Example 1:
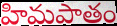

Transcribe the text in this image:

హిమపాతం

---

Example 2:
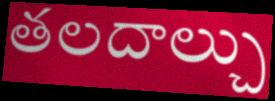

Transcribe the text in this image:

తలదాల్చు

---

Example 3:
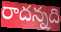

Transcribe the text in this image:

రాదన్నది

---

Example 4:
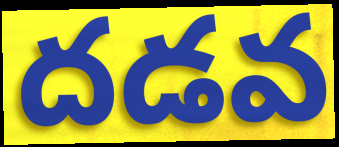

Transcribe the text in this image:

దడవ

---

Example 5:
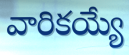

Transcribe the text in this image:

వారికయ్యే